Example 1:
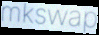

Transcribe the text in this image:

mkswap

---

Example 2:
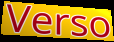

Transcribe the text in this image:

Verso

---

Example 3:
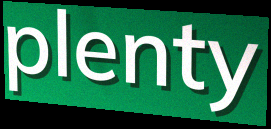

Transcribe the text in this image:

plenty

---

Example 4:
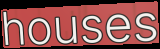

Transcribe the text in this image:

houses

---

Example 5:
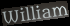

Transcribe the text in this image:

William